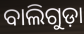
ବାଲିଗୁଡ଼ା